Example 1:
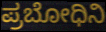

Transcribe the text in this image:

ಪ್ರಬೋಧಿನಿ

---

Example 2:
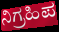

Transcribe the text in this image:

ನಿಗ್ರಹಿಪ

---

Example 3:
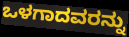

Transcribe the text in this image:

ಒಳಗಾದವರನ್ನು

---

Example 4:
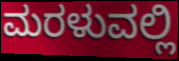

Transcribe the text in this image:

ಮರಳುವಲ್ಲಿ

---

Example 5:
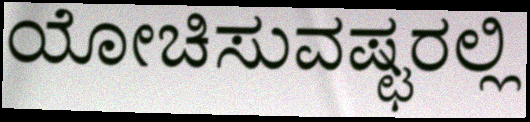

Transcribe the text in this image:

ಯೋಚಿಸುವಷ್ಟರಲ್ಲಿ